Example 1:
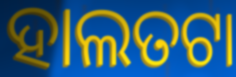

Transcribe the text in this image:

ହାଲତଟା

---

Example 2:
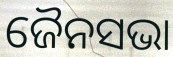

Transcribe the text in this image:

ଜୈନସଭା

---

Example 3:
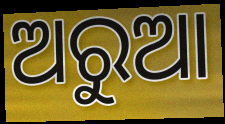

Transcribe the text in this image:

ଅରୁଆ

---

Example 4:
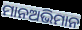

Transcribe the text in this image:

ମାନଅଭିମାନ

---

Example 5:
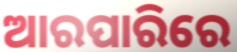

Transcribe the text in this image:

ଆରପାରିରେ